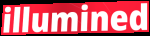
illumined